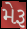
મેરૂ